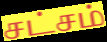
சட்சம்